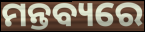
ମନ୍ତବ୍ୟରେ